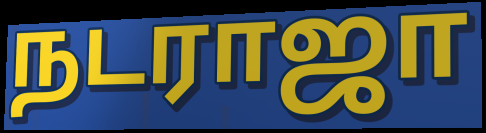
நடராஜா